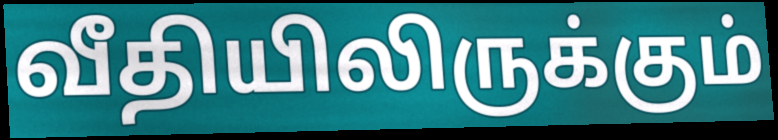
வீதியிலிருக்கும்